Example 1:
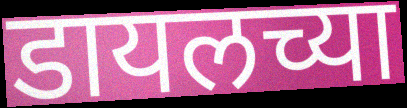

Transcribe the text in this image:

डायलच्या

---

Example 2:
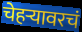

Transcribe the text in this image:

चेहर्‍यावरचं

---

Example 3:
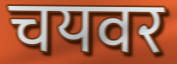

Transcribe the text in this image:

चयवर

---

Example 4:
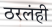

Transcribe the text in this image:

ठरलंही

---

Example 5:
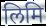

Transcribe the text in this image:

लिमि